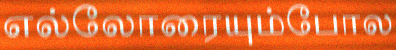
எல்லோரையும்போல